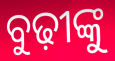
ବୁଢ଼ୀଙ୍କୁ